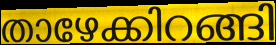
താഴേക്കിറങ്ങി